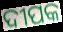
ଦୀପକ